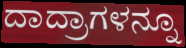
ದಾದ್ರಾಗಳನ್ನೂ